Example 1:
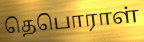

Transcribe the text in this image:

தெபொராள்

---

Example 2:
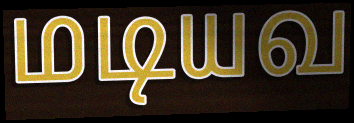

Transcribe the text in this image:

மடியவ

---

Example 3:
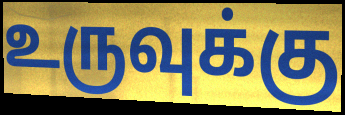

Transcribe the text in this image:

உருவுக்கு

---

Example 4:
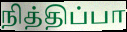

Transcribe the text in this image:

நித்திப்பா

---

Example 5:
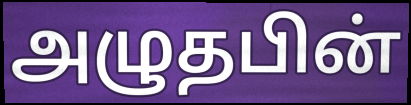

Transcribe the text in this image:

அழுதபின்